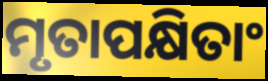
ମୃତାପକ୍ଷିତାଂ